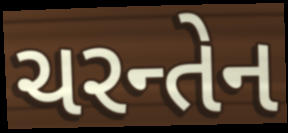
ચરન્તેન